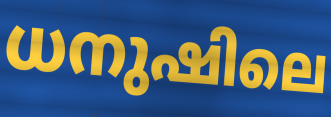
ധനുഷിലെ